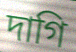
দাগি